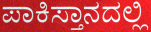
ಪಾಕಿಸ್ತಾನದಲ್ಲಿ